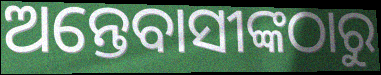
ଅନ୍ତେବାସୀଙ୍କଠାରୁ